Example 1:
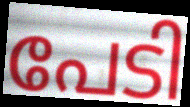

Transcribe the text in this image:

പേടി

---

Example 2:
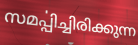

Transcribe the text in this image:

സമൎപ്പിച്ചിരിക്കുന്ന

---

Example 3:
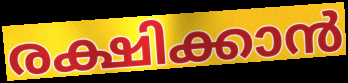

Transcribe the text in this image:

രക്ഷിക്കാൻ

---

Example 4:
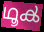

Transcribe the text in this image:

ഥൂൿ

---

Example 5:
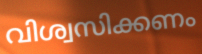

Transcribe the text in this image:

വിശ്വസിക്കണം